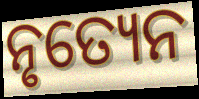
ନୃତ୍ୟେନ